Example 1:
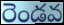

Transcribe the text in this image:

రెండవ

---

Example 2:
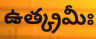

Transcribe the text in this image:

ఉత్క్రమీః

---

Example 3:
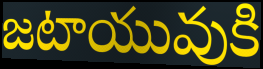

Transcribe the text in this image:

జటాయువుకి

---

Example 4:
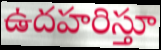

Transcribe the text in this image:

ఉదహరిస్తూ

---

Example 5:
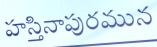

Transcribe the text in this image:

హస్తినాపురమున